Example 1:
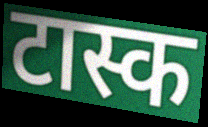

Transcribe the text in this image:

टास्क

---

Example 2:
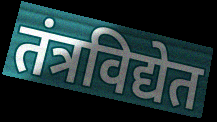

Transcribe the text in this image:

तंत्रविद्येत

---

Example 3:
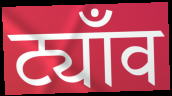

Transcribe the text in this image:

ट्याँव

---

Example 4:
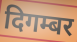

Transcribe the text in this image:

दिगम्बर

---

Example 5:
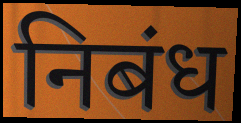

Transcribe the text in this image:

निबंध